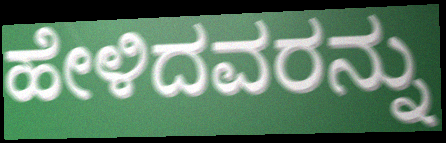
ಹೇಳಿದವರನ್ನು